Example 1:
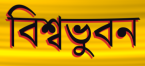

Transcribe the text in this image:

বিশ্বভুবন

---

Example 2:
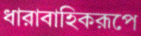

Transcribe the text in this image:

ধারাবাহিকরূপে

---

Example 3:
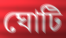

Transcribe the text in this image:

ঘোটি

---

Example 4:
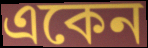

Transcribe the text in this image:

একেন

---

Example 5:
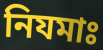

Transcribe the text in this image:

নিযমাঃ